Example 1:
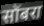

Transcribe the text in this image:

सोंबरा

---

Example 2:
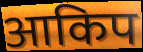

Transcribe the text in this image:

आकिप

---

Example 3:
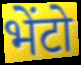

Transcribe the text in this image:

भेंटो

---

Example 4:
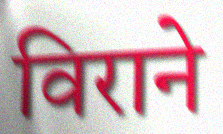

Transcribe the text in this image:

विराने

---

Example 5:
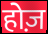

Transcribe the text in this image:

होज़